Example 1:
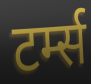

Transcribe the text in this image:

टर्म्स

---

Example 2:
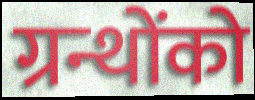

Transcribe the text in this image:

ग्रन्थोंको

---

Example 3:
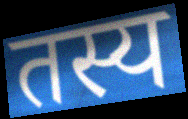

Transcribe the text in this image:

तस्य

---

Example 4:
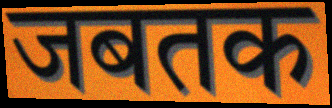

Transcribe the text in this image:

जबतक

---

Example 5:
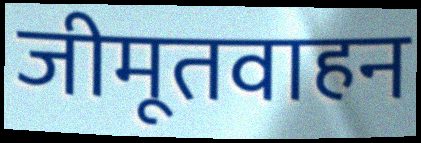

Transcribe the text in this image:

जीमूतवाहन